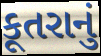
કૂતરાનું